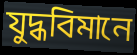
যুদ্ধবিমানে